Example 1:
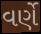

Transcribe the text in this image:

વર્ણે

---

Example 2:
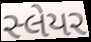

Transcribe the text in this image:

સ્લેયર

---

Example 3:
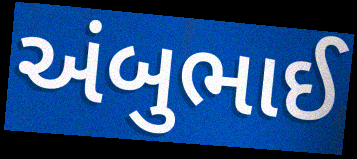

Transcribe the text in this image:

અંબુભાઈ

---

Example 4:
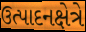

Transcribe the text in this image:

ઉત્પાદનક્ષેત્રે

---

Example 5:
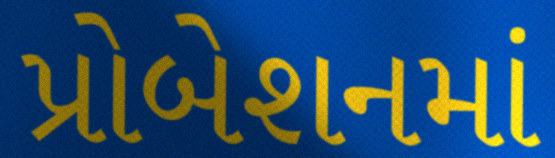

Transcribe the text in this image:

પ્રોબેશનમાં